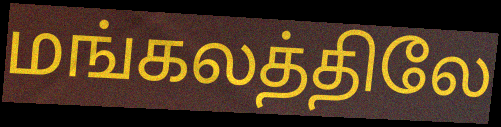
மங்கலத்திலே